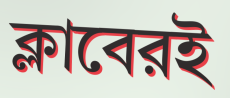
ক্লাবেরই